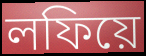
লফিয়ে